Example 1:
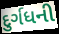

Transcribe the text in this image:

દુર્ગધની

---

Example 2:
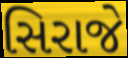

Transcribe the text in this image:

સિરાજે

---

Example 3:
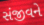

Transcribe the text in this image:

સંજીવને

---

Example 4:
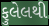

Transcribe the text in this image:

ફુલેલથી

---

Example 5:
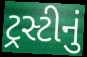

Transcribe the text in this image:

ટ્રસ્ટીનું